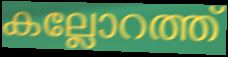
കല്ലോറത്ത്